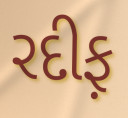
રદીફ઼